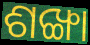
ଶଙ୍ଖା